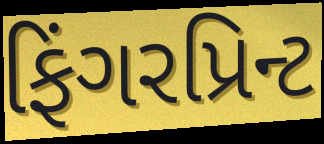
ફિંગરપ્રિન્ટ